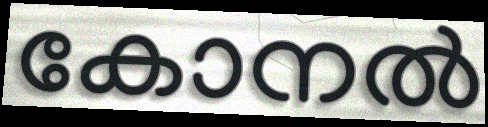
കോനൽ